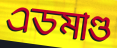
এডমাণ্ড